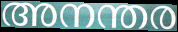
അനന്തര